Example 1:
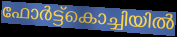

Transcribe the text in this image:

ഫോർട്ട്കൊച്ചിയിൽ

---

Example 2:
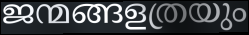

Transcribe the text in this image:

ജന്മങ്ങളത്രയും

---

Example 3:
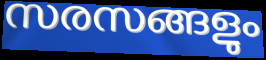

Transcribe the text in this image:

സരസങ്ങളും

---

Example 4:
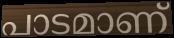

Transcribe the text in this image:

പാടമാണ്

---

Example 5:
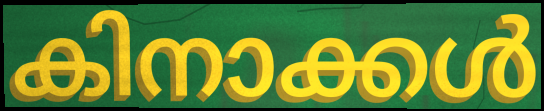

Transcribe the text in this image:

കിനാക്കൾ